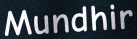
Mundhir